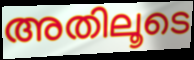
അതിലൂടെ